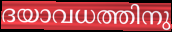
ദയാവധത്തിനു